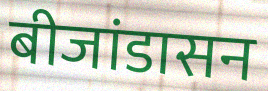
बीजांडासन